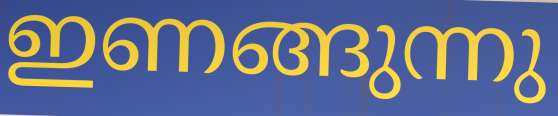
ഇണങ്ങുന്നു